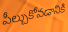
పీల్చుకోవడానికి